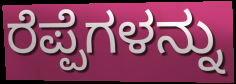
ರೆಪ್ಪೆಗಳನ್ನು